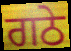
ਗਠੇ